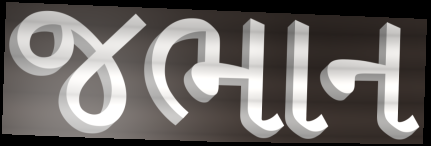
જભાન